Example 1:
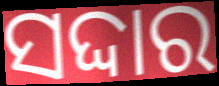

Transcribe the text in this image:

ସଦ୍ଦାର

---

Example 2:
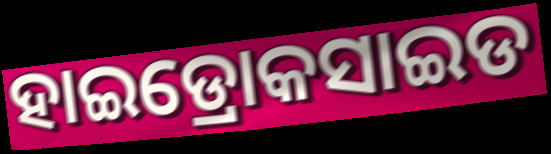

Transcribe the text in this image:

ହାଇଡ୍ରୋକସାଇଡ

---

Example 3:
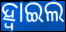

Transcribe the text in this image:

ହ୍ବାଇଲ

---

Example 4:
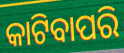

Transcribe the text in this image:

କାଟିବାପରି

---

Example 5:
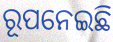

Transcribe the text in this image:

ରୂପନେଇଛି